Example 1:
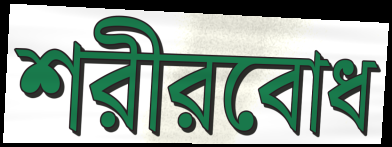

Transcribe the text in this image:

শরীরবোধ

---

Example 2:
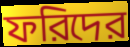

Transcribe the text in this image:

ফরিদের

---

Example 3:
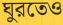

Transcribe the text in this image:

ঘুরতেও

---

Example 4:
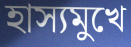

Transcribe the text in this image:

হাস্যমুখে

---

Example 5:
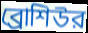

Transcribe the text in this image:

ব্রোশিউর